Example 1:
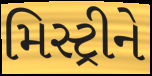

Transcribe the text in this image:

મિસ્ટ્રીને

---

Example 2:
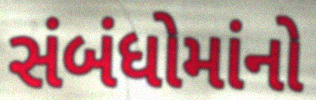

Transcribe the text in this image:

સંબંધોમાંનો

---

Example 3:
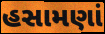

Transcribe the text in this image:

હસામણાં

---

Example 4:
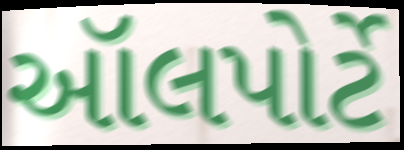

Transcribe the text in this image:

ઑલપોર્ટે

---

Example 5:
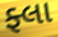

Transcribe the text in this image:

ફ્લા